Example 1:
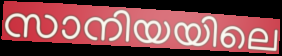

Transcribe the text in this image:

സാനിയയിലെ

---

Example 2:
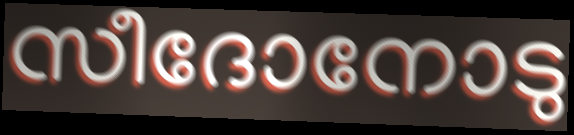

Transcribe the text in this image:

സീദോനോടു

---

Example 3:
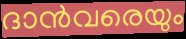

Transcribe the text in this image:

ദാൻവരെയും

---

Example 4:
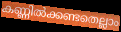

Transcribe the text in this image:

കണ്ണിൽക്കണ്ടതെല്ലാം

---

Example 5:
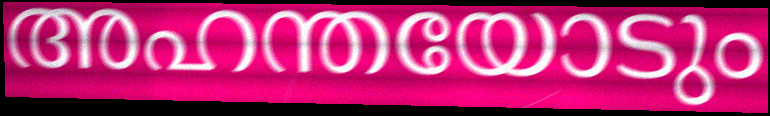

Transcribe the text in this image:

അഹന്തയോടും